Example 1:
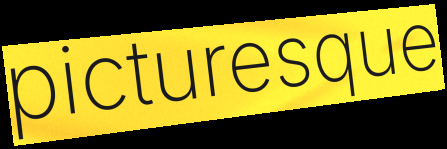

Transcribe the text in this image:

picturesque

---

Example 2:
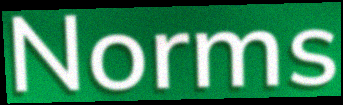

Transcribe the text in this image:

Norms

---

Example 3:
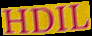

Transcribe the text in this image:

HDIL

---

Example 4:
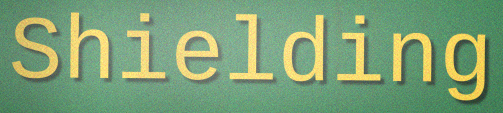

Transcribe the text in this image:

Shielding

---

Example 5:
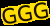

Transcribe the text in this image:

GGG